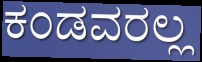
ಕಂಡವರಲ್ಲ